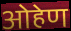
ओहेण